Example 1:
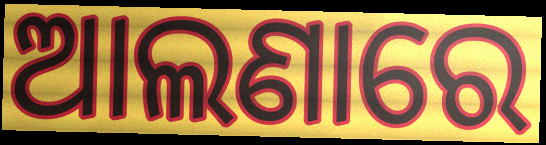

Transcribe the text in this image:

ଆଲଣାରେ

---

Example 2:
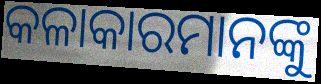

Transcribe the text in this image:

କଳାକାରମାନଙ୍କୁ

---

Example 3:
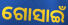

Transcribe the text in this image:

ଗୋସାଇଁ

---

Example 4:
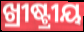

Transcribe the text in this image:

ଖ୍ରୀଷ୍ଟ୍ରୀୟ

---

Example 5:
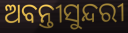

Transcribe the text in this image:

ଅବନ୍ତୀସୁନ୍ଦରୀ